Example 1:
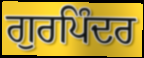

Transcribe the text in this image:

ਗੁਰਪਿੰਦਰ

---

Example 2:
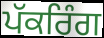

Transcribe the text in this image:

ਪੱਕਰਿੰਗ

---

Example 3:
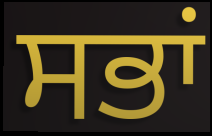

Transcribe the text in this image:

ਸਭਾਂ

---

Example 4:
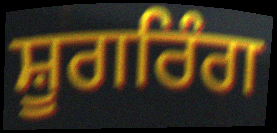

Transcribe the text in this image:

ਸ਼ੂਗਰਿੰਗ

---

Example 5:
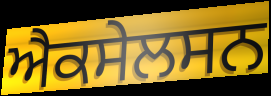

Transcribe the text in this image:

ਐਕਸੇਲਸਨ